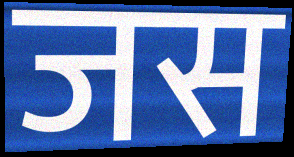
जस